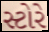
સ્ટોરે